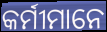
କର୍ମୀମାନେ